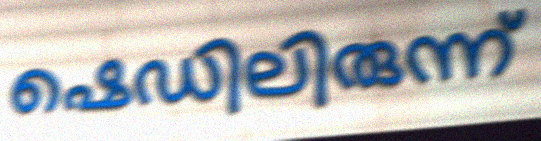
ഷെഡിലിരുന്ന്